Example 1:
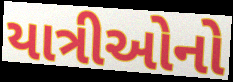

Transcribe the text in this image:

યાત્રીઓનો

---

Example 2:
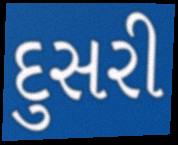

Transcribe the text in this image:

દુસરી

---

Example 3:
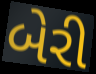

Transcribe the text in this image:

બેરી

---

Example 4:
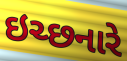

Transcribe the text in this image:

ઇચ્છનારે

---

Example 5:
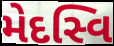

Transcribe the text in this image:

મેદસ્વિ